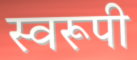
स्वरूपी